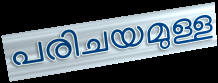
പരിചയമുള്ള